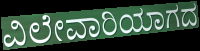
ವಿಲೇವಾರಿಯಾಗದ